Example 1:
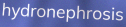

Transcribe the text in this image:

hydronephrosis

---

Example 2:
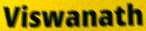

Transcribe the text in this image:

Viswanath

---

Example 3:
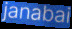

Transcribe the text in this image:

janabai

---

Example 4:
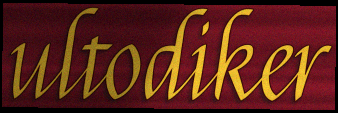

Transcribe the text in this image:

ultodiker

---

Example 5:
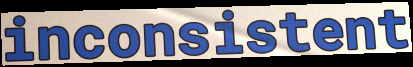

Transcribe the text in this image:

inconsistent